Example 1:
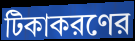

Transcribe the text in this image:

টিকাকরণের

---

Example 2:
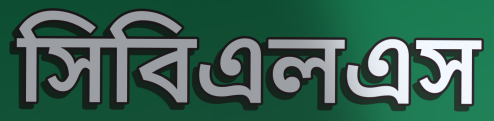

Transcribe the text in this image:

সিবিএলএস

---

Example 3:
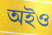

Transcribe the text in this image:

অইও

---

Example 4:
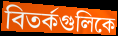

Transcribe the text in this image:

বিতর্কগুলিকে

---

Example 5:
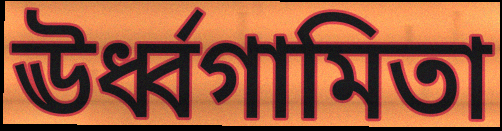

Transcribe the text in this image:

ঊর্ধ্বগামিতা